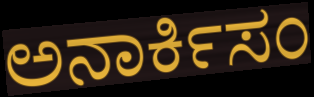
ಅನಾರ್ಕಿಸಂ